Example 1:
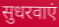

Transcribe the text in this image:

सुधरवाएं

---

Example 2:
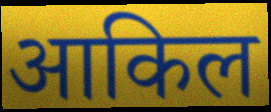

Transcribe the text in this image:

आकिल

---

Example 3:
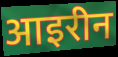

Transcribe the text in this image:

आइरीन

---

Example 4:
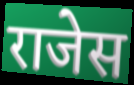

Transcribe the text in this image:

राजेस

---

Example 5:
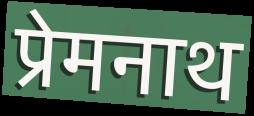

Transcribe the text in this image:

प्रेमनाथ